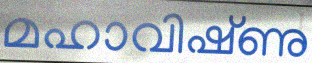
മഹാവിഷ്‌ണു